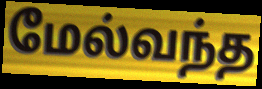
மேல்வந்த